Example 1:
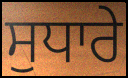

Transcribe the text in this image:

ਸੁਧਾਰੇ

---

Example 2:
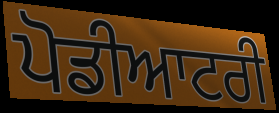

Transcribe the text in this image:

ਪੋਡੀਆਟਰੀ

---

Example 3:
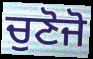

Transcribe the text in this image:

ਚੁਣੋਜੋ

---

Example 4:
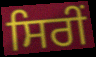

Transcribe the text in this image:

ਸਿਰੀਂ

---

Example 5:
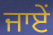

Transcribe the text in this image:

ਜਾਏਂ